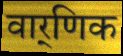
वार्णिक